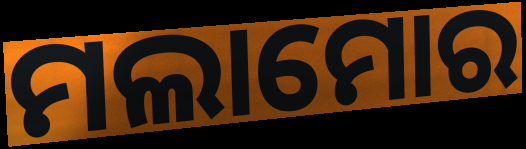
ମଲାମୋର